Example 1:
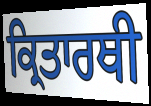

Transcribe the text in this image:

ਕ੍ਰਿਤਾਰਥੀ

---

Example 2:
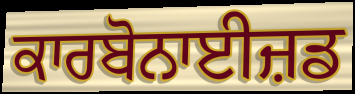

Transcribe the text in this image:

ਕਾਰਬੋਨਾਈਜ਼ਡ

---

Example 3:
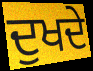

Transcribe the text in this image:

ਦੁਖਦੇ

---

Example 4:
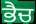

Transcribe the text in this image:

ਭੈਚ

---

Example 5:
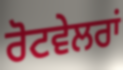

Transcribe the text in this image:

ਰੋਟਵੇਲਰਾਂ